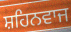
ਸ਼ਹਿਨਵਾਜ